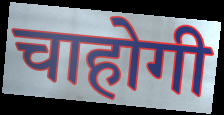
चाहोगी